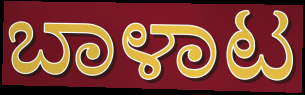
ಬಾಳಾಟ